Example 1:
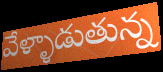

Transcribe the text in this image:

వేళ్ళాడుతున్న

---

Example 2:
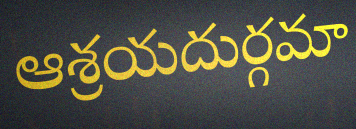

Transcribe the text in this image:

ఆశ్రయదుర్గమా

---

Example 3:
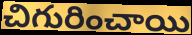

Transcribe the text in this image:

చిగురించాయి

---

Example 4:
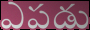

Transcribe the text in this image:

ఎపడు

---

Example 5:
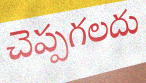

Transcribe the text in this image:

చెప్పగలదు